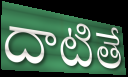
దాటితే